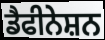
ਡੈਫੀਨੇਸ਼ਨ